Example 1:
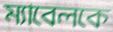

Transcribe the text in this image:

ম্যাবেলকে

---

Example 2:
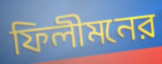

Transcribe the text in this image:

ফিলীমনের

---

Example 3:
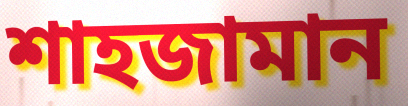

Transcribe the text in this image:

শাহজামান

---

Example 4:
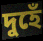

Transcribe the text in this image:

দুহেঁ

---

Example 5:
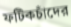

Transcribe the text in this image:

ফটিকচাঁদের